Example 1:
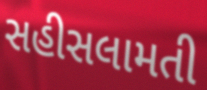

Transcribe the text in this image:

સહીસલામતી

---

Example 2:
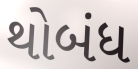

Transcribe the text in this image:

થોબંધ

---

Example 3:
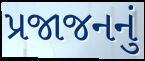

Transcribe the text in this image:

પ્રજાજનનું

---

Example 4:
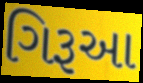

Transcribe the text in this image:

ગિરૂઆ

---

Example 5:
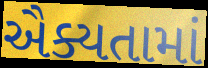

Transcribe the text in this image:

ઐક્યતામાં